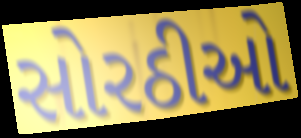
સોરઠીઓ